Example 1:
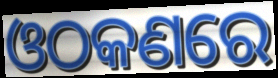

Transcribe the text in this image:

ଓଠକଣରେ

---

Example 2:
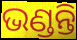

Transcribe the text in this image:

ଭଣ୍ଡନ୍ତି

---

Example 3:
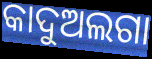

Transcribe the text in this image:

କାଦୁଅଲଗା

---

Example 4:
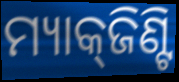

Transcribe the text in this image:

ମ୍ୟାକ୍‌ଜିଣ୍ଟି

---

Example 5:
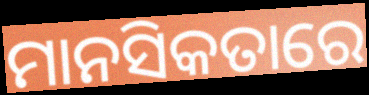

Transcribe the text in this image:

ମାନସିକତାରେ